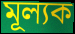
মূল্যক